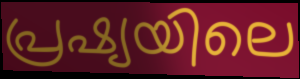
പ്രഷ്യയിലെ